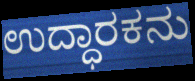
ಉದ್ಧಾರಕನು